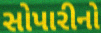
સોપારીનો